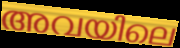
അവയിലെ